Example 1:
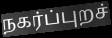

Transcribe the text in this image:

நகர்ப்புறச்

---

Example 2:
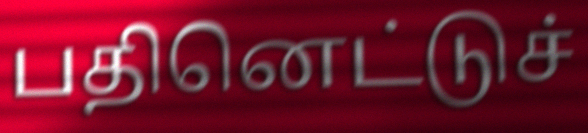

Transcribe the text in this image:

பதினெட்டுச்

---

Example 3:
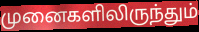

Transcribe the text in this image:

முனைகளிலிருந்தும்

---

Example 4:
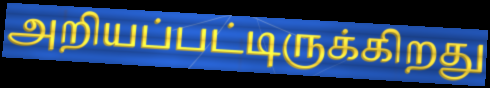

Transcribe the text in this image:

அறியப்பட்டிருக்கிறது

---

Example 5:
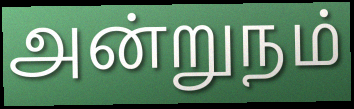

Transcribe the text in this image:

அன்றுநம்